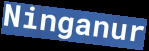
Ninganur